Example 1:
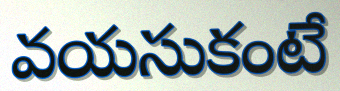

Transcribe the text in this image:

వయసుకంటే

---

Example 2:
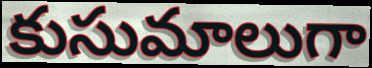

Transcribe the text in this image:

కుసుమాలుగా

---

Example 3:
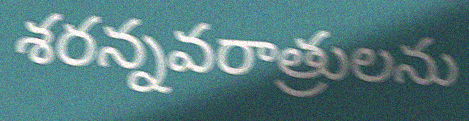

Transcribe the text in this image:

శరన్నవరాత్రులను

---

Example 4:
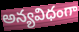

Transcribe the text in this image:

అన్యవిధంగా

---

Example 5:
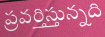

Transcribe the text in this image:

ప్రవర్తిస్తున్నది